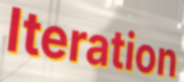
Iteration